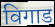
विगाड